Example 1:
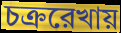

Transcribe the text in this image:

চক্ররেখায়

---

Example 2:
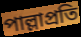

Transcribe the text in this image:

পাল্লাপ্রতি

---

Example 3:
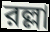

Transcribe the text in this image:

রল্লা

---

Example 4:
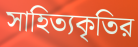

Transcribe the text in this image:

সাহিত্যকৃতির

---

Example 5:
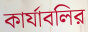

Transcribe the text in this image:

কার্যাবলির